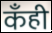
कँही